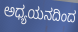
ಅಧ್ಯಯನದಿಂದ